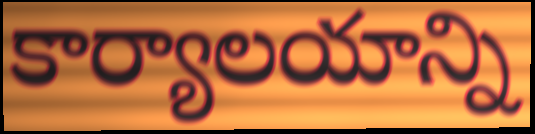
కార్యాలయాన్ని